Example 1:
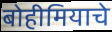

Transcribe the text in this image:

बोहीमियाचे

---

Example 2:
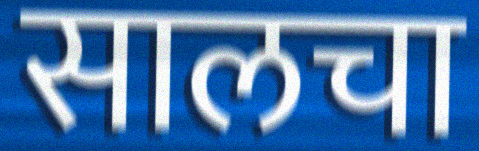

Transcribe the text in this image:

सालचा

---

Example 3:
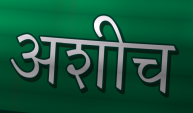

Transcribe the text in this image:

अशीच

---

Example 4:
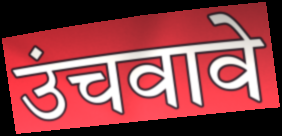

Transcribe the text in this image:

उंचवावे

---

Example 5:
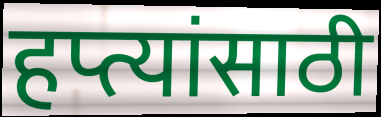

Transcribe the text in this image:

हप्त्यांसाठी